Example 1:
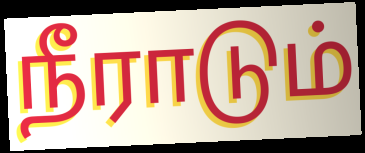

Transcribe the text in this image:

நீராடும்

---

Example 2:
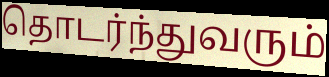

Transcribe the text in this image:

தொடர்ந்துவரும்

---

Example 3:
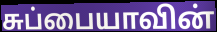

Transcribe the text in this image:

சுப்பையாவின்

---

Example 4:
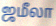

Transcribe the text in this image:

ஜமீலா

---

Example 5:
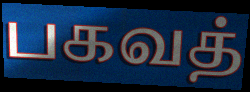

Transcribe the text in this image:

பகவத்